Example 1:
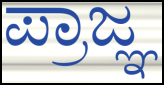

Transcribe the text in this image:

ಪ್ರಾಜ್ಞ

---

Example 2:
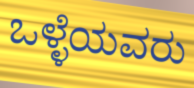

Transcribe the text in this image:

ಒಳ್ಳೆಯವರು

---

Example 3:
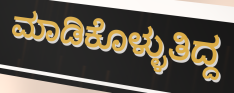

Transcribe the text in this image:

ಮಾಡಿಕೊಳ್ಳುತಿದ್ದ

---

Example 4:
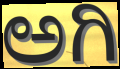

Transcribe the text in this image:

ಅಗಿ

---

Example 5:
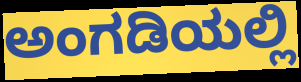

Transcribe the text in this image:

ಅಂಗಡಿಯಲ್ಲಿ